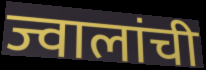
ज्वालांची